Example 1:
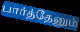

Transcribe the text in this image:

பார்த்தேனும்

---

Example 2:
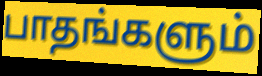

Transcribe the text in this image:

பாதங்களும்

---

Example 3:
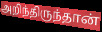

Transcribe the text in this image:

அறிந்திருந்தான்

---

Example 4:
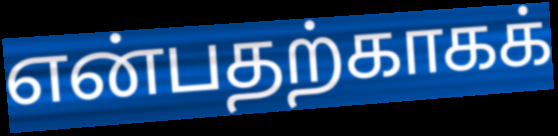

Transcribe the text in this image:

என்பதற்காகக்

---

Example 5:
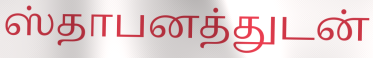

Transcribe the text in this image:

ஸ்தாபனத்துடன்